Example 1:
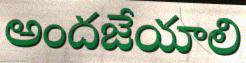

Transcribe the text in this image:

అందజేయాలి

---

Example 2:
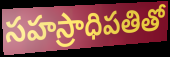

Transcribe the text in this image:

సహస్రాధిపతితో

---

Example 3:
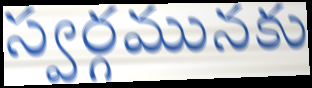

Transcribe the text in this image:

స్వర్గమునకు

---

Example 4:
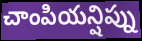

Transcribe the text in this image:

చాంపియన్షిప్ను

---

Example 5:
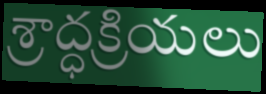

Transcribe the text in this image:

శ్రాద్ధక్రియలు